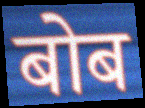
बोब